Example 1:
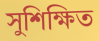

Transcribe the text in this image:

সুশিক্ষিত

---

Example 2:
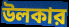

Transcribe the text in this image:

উলকার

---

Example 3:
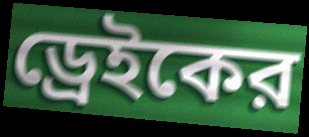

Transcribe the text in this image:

ড্রেইকের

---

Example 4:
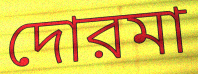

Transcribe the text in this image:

দোরমা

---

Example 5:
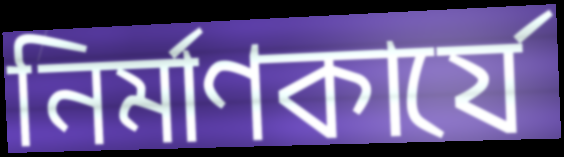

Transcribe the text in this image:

নির্মাণকার্যে